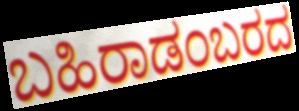
ಬಹಿರಾಡಂಬರದ